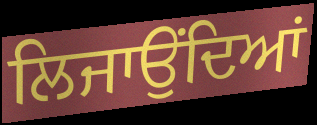
ਲਿਜਾਉਂਦਿਆਂ